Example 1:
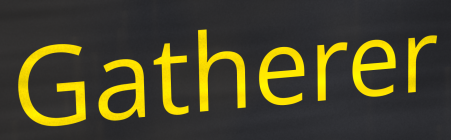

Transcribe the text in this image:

Gatherer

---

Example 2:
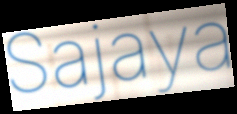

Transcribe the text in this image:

Sajaya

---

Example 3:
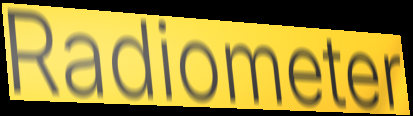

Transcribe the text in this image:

Radiometer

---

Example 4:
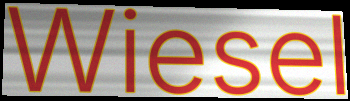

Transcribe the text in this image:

Wiesel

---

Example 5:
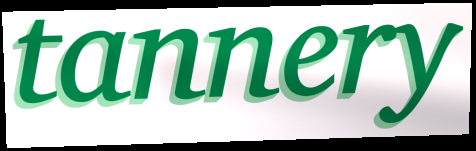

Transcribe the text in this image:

tannery